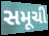
સમૂચી